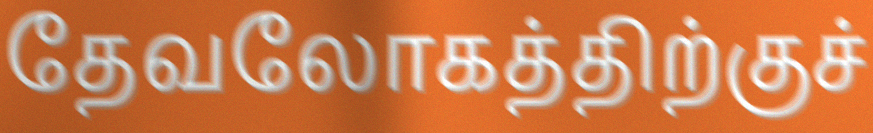
தேவலோகத்திற்குச்